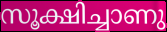
സൂക്ഷിച്ചാണു